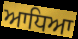
ਆਧਿਆ